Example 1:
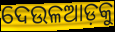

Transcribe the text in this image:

ଦେଉଳଆଡ଼କୁ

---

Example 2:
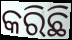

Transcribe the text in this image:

କରିଛି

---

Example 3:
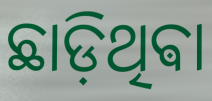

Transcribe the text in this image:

ଛାଡ଼ିଥିଵା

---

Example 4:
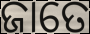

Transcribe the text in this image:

ଜାତେ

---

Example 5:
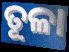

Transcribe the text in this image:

ତୂଳା